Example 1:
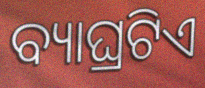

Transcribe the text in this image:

ବ୍ୟାଘ୍ରଟିଏ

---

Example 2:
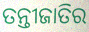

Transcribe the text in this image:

ତନ୍ତୀଜାତିର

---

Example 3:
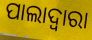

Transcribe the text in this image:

ପାଲାଦ୍ୱାରା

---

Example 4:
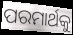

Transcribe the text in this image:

ପରମାର୍ଥକୁ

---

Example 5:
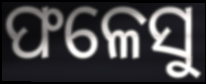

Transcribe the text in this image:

ଫଳେସୁ